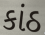
કાંઠ